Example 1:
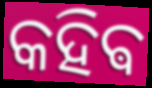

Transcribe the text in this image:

କହିଵ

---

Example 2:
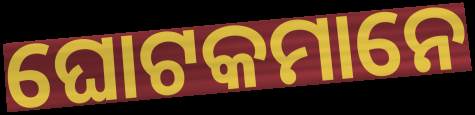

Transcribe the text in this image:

ଘୋଟକମାନେ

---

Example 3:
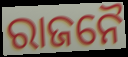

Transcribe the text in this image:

ରାଜନୈ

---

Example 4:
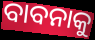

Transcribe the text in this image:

ବାବନାକୁ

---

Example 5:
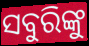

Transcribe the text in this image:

ସବୁରିଙ୍କୁ